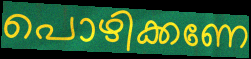
പൊഴിക്കണേ